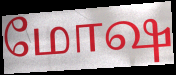
மோஷ